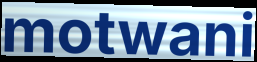
motwani